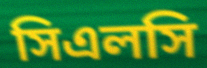
সিএলসি